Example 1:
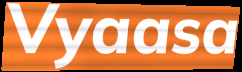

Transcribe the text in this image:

Vyaasa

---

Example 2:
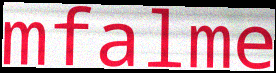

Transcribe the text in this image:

mfalme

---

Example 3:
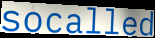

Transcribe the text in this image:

socalled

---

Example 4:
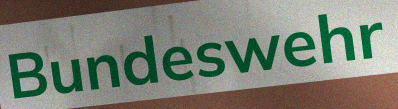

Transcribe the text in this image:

Bundeswehr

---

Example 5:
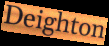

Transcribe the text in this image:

Deighton